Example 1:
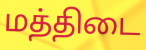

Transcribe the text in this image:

மத்திடை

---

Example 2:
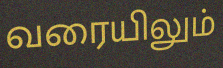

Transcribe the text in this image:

வரையிலும்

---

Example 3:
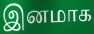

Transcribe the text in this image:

இனமாக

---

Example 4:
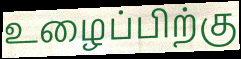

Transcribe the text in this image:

உழைப்பிற்கு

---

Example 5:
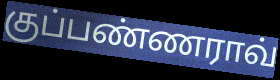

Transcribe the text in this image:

குப்பண்ணராவ்